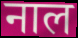
नाल